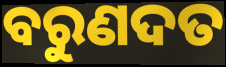
ବରୁଣଦତ